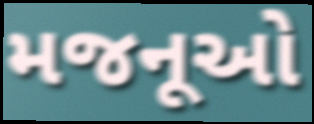
મજનૂઓ